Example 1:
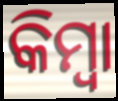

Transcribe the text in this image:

କିମ୍ବା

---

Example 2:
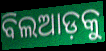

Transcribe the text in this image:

ବିଲଆଡ଼କୁ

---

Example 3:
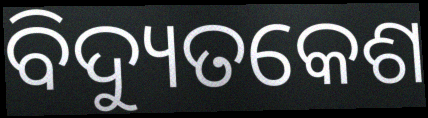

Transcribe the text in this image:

ବିଦ୍ୟୁତକେଶ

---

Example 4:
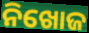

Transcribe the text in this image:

ନିଖୋଜ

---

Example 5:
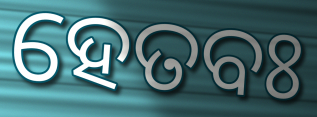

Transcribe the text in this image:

ହେତବଃ